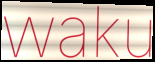
waku